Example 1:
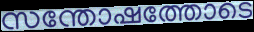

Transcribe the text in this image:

സന്തോഷത്തോടെ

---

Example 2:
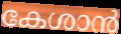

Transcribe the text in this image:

കേശാൻ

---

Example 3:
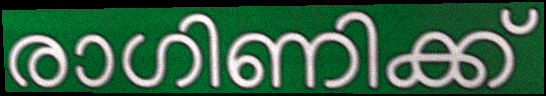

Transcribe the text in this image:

രാഗിണിക്ക്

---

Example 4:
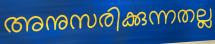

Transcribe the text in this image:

അനുസരിക്കുന്നതല്ല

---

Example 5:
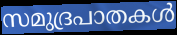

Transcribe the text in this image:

സമുദ്രപാതകൾ